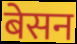
बेसन